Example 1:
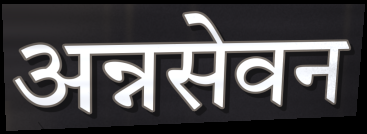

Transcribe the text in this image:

अन्नसेवन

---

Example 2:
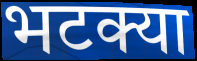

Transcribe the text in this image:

भटक्या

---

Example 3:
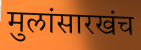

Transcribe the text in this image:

मुलांसारखंच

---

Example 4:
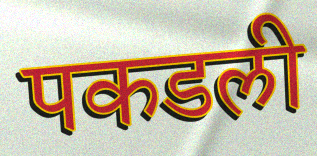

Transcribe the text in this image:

पकडली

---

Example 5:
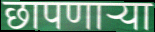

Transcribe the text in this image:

छापणाऱ्या